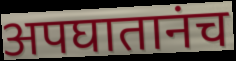
अपघातानंच